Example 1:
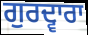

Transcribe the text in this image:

ਗੁਰਦ੍ਵਾਰਾ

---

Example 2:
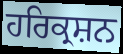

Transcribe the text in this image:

ਹਰਿਕ੍ਰਸ਼ਨ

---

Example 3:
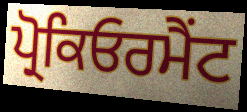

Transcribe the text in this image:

ਪ੍ਰੋਕਿਓਰਮੈਂਟ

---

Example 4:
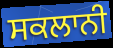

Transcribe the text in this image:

ਸਕਲਾਨੀ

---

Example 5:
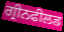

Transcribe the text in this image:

ਗ੍ਰੀਨਫੀਲਡ